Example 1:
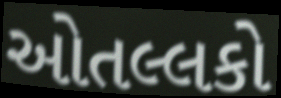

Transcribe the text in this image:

ઓતલ્લકો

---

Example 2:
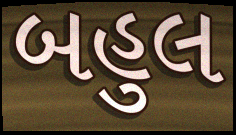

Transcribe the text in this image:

બહુલ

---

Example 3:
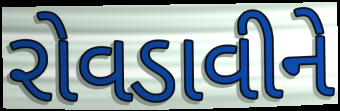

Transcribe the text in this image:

રોવડાવીને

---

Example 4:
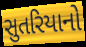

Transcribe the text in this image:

સુતરિયાનો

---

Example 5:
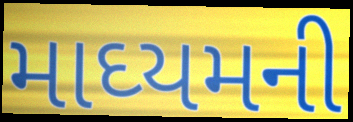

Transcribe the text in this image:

માઘ્યમની